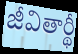
జీవితార్థీ